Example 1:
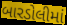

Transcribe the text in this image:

બારડોલીમાં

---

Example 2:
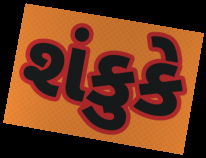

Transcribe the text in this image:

શંકુકે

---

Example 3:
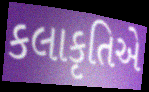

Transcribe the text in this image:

કલાકૃતિએ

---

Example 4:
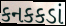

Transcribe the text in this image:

કનકકડાં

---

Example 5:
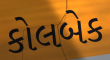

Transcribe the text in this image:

કોલબેક